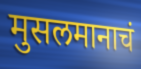
मुसलमानाचं